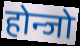
होन्जो